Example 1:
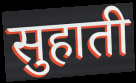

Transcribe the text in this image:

सुहाती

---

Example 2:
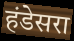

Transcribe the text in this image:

हंडेसरा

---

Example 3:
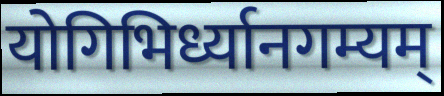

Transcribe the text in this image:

योगिभिर्ध्यानगम्यम्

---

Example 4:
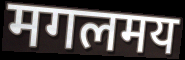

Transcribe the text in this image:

मगलमय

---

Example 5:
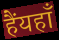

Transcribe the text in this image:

हैंयहाँ